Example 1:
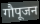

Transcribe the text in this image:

गौपूजन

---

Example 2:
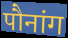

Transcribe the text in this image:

पौनांग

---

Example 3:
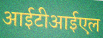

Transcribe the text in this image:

आईटीआईएल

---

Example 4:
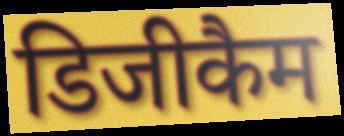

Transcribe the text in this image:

डिजीकैम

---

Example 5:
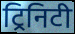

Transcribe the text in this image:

ट्रिनिटी